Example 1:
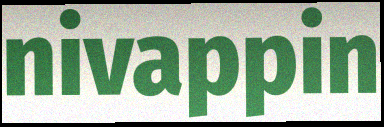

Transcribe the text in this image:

nivappin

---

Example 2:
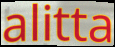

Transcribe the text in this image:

alitta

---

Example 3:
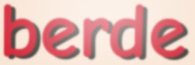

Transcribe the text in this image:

berde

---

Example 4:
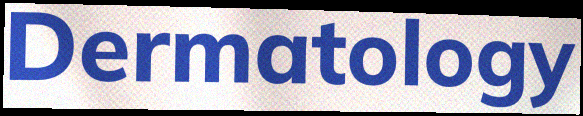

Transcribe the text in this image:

Dermatology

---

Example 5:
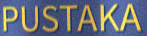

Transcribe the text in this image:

PUSTAKA